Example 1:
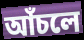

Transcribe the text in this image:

আঁচলে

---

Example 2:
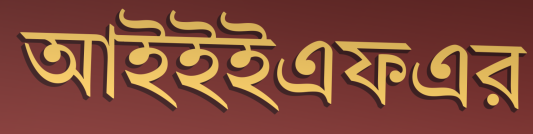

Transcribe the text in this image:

আইইইএফএর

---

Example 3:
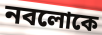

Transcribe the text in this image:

নবলোকে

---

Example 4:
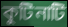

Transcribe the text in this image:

কুটিনাটি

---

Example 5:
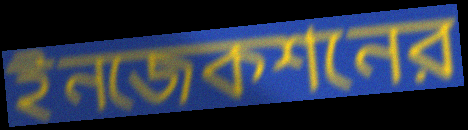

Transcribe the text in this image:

ইনজেকশনের